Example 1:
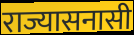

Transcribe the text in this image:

राज्यासनासी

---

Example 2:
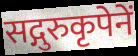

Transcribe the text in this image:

सद्गुरुकृपेनें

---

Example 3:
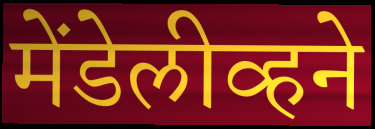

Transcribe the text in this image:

मेंडेलीव्हने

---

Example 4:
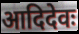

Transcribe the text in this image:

आदिदेवः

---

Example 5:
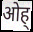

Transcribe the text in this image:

ओह्